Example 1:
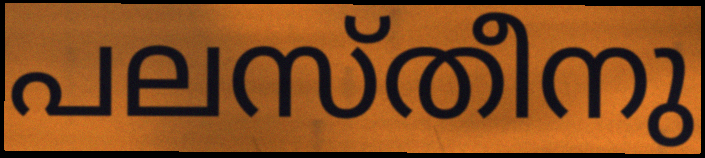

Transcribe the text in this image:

പലസ്തീനു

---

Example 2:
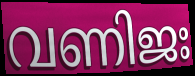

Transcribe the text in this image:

വണിജഃ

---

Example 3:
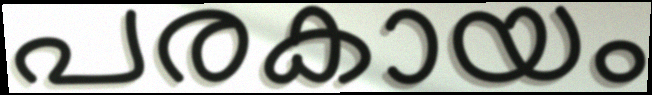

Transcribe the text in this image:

പരകായം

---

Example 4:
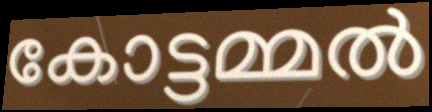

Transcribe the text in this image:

കോട്ടമ്മൽ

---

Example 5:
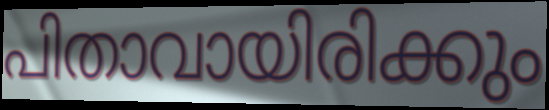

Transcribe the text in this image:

പിതാവായിരിക്കും